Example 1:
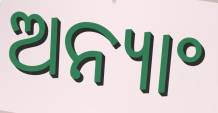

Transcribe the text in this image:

ଅନ୍ୟାଂ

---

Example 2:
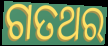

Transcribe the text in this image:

ଗତଥର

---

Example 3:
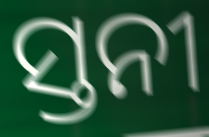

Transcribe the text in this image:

ସ୍ତନୀ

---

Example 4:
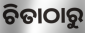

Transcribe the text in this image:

ଚିତାଠାରୁ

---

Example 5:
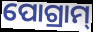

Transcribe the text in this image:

ପୋଗ୍ରାମ୍